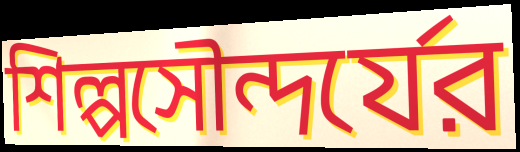
শিল্পসৌন্দর্যের